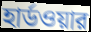
হার্ডওয়ার